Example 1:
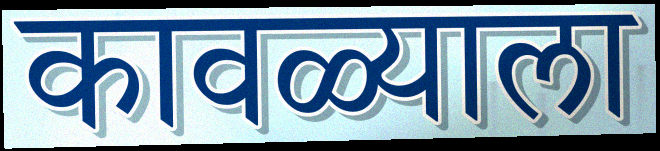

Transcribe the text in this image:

कावळ्याला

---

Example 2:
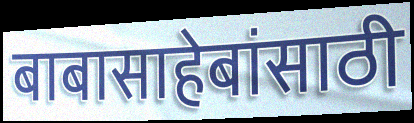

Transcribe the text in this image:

बाबासाहेबांसाठी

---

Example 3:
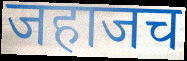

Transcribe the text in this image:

जहाजच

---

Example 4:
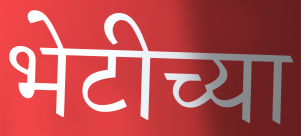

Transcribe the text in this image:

भेटीच्या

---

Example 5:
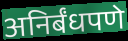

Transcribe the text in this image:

अनिर्बंधपणे